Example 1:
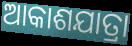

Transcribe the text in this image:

ଆକାଶଯାତ୍ରା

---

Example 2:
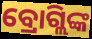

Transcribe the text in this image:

ବ୍ରୋଗ୍ଲିଙ୍କ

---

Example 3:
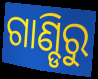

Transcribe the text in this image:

ଗାଣ୍ଡିରୁ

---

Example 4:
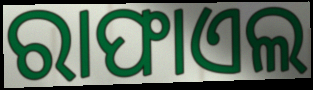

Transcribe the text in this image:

ରାଫାଏଲ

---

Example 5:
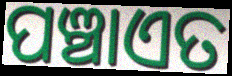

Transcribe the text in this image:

ପଞ୍ଚାଏତ